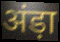
अंड़ा